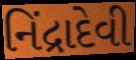
નિંદ્રાદેવી